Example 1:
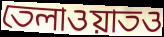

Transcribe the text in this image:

তেলাওয়াতও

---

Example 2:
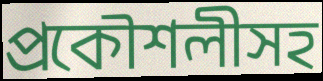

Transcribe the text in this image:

প্রকৌশলীসহ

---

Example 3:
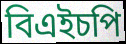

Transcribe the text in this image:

বিএইচপি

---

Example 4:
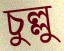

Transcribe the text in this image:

চুল্লু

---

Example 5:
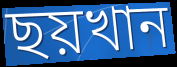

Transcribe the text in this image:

ছয়খান